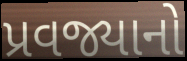
પ્રવજ્યાનો